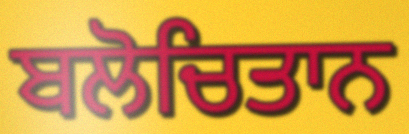
ਬਲੋਚਿਤਾਨ